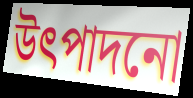
উৎপাদনো